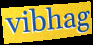
vibhag